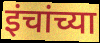
इंचांच्या